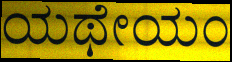
ಯಥೇಯಂ